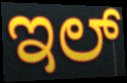
ಇಲ್